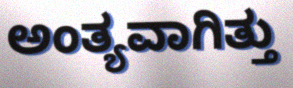
ಅಂತ್ಯವಾಗಿತ್ತು